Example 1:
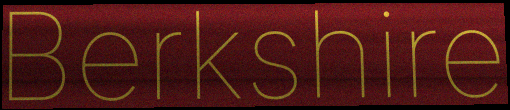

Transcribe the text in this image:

Berkshire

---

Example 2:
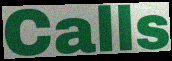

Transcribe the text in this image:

Calls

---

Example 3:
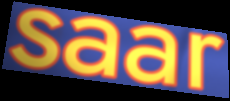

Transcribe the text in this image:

saar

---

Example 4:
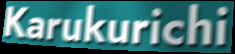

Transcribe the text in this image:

Karukurichi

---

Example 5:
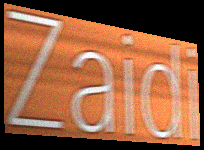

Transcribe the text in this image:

Zaidi